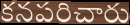
కనపరిచారు